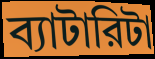
ব্যাটারিটা